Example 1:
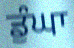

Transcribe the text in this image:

ਡੁੰਘਾ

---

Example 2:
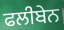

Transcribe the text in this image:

ਫਲੀਬੇਨ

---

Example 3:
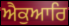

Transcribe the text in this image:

ਐਕੁਆਰਿ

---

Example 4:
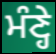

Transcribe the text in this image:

ਮੰਣ੍ਹੇ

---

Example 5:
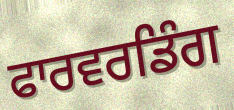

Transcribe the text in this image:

ਫਾਰਵਰਡਿੰਗ